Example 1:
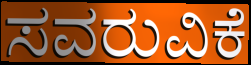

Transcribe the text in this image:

ಸವರುವಿಕೆ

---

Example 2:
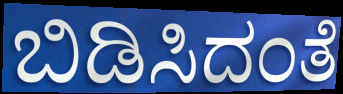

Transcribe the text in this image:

ಬಿಡಿಸಿದಂತೆ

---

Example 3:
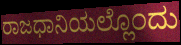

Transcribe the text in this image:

ರಾಜಧಾನಿಯಲ್ಲೊಂದು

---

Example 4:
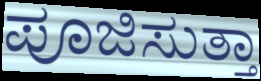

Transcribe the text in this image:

ಪೂಜಿಸುತ್ತಾ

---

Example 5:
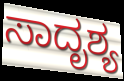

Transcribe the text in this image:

ಸಾದೃಶ್ಯ